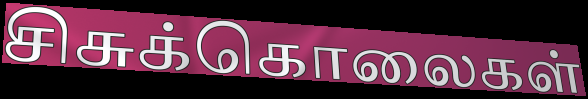
சிசுக்கொலைகள்